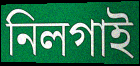
নিলগাই